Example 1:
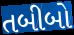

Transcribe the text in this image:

તબીબો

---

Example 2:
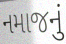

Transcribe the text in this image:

નમાજનું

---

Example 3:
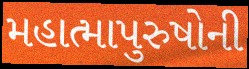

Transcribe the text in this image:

મહાત્માપુરુષોની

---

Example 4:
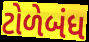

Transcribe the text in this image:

ટોળેબંધ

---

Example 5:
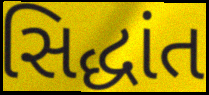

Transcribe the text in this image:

સિદ્ધાંત